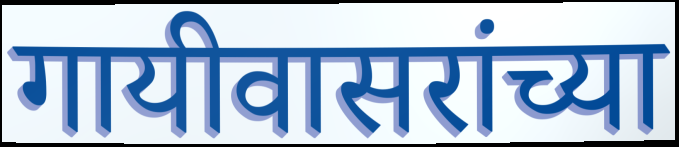
गायीवासरांच्या